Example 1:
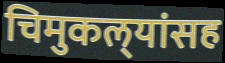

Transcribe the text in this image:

चिमुकल्यांसह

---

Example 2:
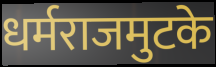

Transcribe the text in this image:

धर्मराजमुटके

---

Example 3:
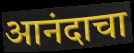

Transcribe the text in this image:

आनंदाचा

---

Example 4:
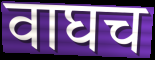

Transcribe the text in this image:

वाघच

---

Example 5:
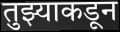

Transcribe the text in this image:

तुझ्याकडून